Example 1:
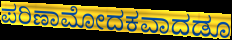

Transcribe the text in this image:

ಪರಿಣಾಮೋದಕವಾದಡೂ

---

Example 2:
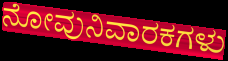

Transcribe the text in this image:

ನೋವುನಿವಾರಕಗಳು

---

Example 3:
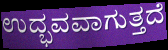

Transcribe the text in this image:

ಉದ್ಭವವಾಗುತ್ತದೆ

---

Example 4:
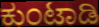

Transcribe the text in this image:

ಕುಂಟಾಡಿ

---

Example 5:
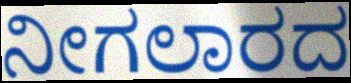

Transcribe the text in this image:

ನೀಗಲಾರದ